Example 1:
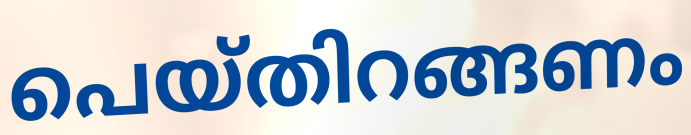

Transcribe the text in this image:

പെയ്തിറങ്ങണം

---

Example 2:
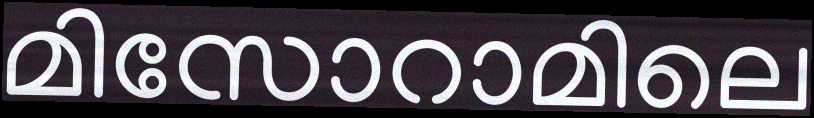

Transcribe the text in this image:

മിസോറാമിലെ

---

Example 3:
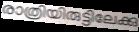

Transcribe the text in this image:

രാത്രിയിരുട്ടിലേക്കു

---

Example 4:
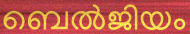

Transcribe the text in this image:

ബെൽജിയം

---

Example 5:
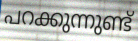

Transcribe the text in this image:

പറക്കുന്നുണ്ട്